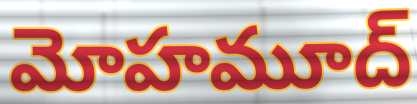
మోహమూద్